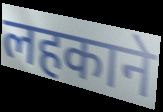
लहकाने